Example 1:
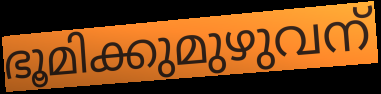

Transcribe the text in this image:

ഭൂമിക്കുമുഴുവന്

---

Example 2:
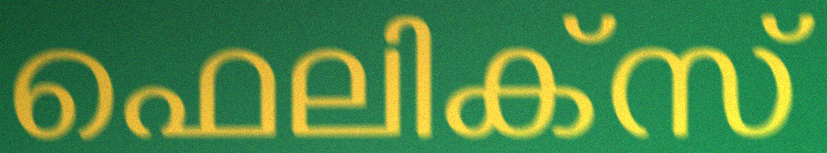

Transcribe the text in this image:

ഫെലിക്‌സ്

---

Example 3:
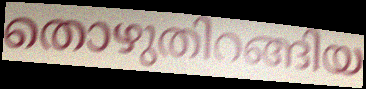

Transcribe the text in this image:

തൊഴുതിറങ്ങിയ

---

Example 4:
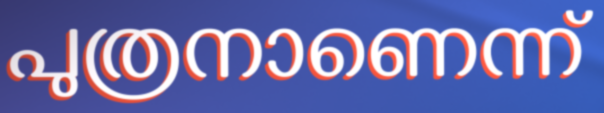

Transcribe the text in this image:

പുത്രനാണെന്ന്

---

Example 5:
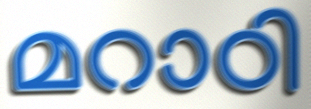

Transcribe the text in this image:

മറാഠി